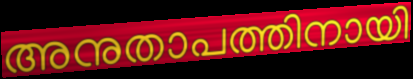
അനുതാപത്തിനായി